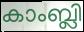
കാംബ്ലി